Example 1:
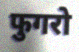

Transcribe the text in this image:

फुगरो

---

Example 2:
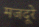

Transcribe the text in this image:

मजदूरे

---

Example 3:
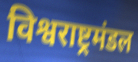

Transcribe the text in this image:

विश्वराष्ट्रमंडल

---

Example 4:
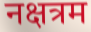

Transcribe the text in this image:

नक्षत्रम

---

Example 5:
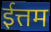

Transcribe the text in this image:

ईत्तम